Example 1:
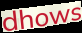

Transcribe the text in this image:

dhows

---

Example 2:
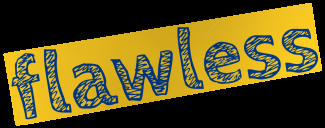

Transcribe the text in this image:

flawless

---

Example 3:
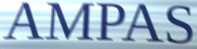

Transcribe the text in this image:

AMPAS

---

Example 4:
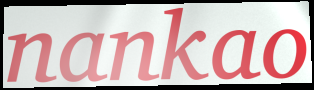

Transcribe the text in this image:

nankao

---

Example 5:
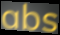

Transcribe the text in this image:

abs